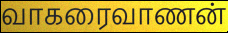
வாகரைவாணன்